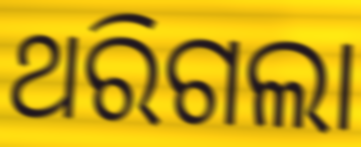
ଥରିଗଲା